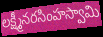
లక్ష్మీనరసింహస్వామి